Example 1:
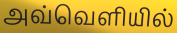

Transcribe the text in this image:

அவ்வெளியில்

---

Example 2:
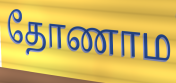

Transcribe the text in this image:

தோணாம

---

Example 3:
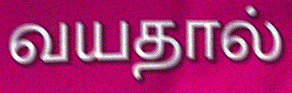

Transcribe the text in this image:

வயதால்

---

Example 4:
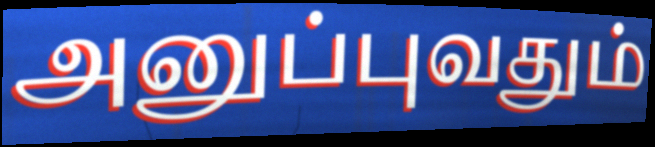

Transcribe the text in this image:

அனுப்புவதும்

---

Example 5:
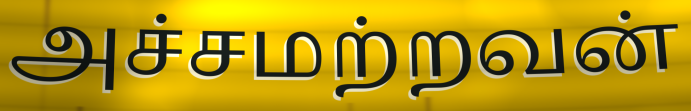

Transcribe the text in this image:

அச்சமற்றவன்